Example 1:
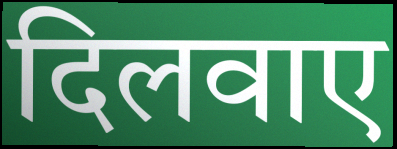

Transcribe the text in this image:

दिलवाए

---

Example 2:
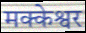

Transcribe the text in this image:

मक्केश्वर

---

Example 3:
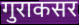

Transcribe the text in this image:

गुराकसर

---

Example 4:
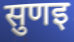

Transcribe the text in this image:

सुणइ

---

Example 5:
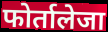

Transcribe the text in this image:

फोर्तालेजा